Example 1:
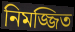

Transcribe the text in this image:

নিমজ্জিত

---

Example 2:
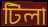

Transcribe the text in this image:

টিলা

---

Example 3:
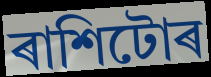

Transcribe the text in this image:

ৰাশিটোৰ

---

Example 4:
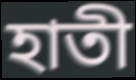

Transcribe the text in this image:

হাতী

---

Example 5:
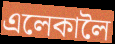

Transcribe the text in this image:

এলেকালৈ